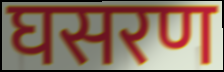
घसरण